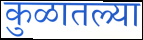
कुळातल्या